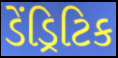
ડેંડ્રિટિક